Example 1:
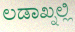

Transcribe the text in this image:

ಲಡಾಖ್ನಲ್ಲಿ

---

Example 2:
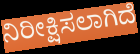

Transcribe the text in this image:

ನಿರೀಕ್ಷಿಸಲಾಗಿದೆ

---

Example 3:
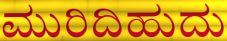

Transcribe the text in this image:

ಮುರಿದಿಹುದು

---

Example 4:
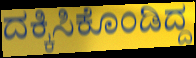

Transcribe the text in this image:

ದಕ್ಕಿಸಿಕೊಂಡಿದ್ದ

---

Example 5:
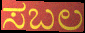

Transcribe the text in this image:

ಸಬಲ